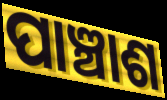
ପାଞ୍ଚାଶ